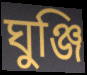
ঘুঞ্জি